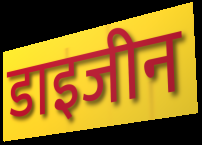
डाइजीन